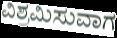
ವಿಶ್ರಮಿಸುವಾಗ